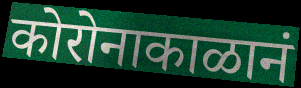
कोरोनाकाळानं